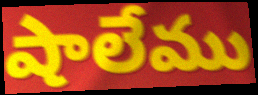
షాలేము